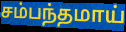
சம்பந்தமாய்